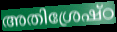
അതിശ്രേഷ്ഠ